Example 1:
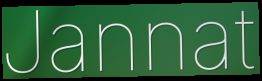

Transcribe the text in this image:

Jannat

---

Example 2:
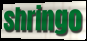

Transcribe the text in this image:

shringo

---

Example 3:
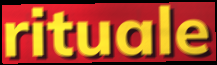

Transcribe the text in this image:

rituale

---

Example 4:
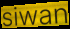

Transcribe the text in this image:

siwan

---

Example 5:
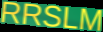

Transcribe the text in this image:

RRSLM